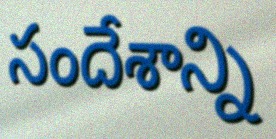
సందేశాన్ని